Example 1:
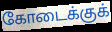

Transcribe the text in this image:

கோடைக்குக்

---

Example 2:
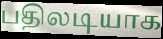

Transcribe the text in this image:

பதிலடியாக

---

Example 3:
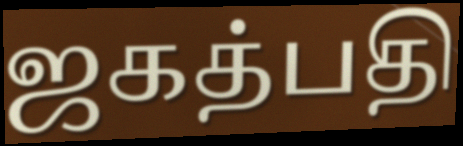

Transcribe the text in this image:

ஜகத்பதி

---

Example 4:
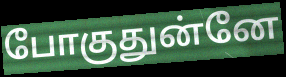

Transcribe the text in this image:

போகுதுன்னே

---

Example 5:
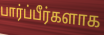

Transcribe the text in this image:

பார்ப்பீர்களாக